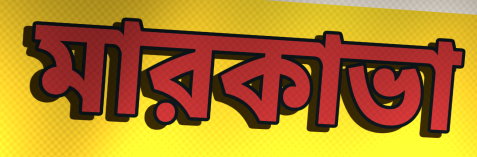
মারকাভা